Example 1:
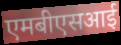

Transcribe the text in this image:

एमबीएसआई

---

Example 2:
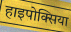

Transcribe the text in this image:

हाइपोक्सिया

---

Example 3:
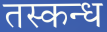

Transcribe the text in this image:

तस्कन्ध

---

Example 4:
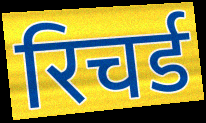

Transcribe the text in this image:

रिचर्ड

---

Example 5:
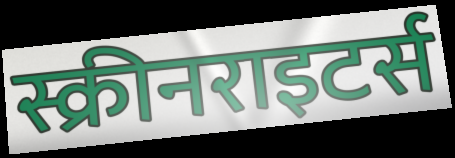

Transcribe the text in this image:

स्क्रीनराइटर्स